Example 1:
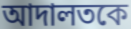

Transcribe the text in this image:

আদালতকে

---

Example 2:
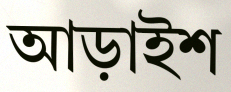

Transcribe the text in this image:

আড়াইশ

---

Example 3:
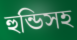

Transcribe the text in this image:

হুন্ডিসহ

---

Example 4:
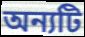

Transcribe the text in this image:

অন্যটি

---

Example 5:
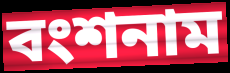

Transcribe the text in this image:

বংশনাম